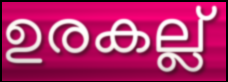
ഉരകല്ല്